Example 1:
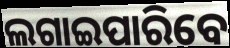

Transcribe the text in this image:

ଲଗାଇପାରିବେ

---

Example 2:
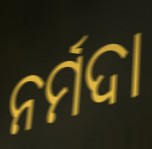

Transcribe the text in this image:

ନର୍ମଦା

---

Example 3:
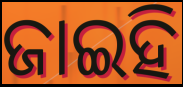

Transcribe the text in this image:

ଜାଇହି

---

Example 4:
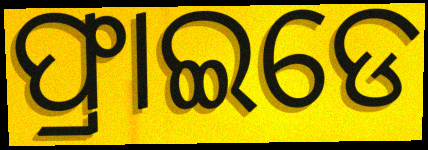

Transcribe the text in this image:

ଫ୍ରାଇଡେ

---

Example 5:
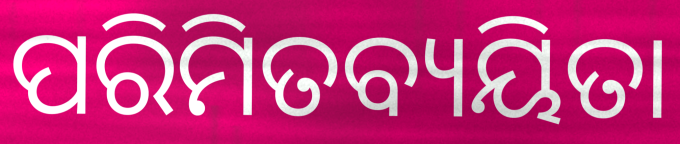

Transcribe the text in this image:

ପରିମିତବ୍ୟୟିତା